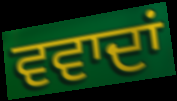
ਵਵਾਦਾਂ